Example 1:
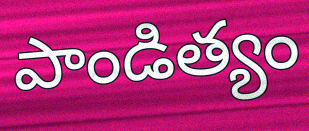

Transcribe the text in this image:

పాండిత్యం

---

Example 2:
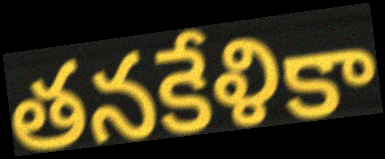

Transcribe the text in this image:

తనకేళికా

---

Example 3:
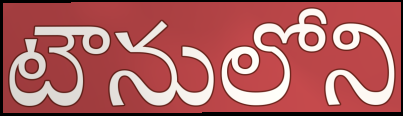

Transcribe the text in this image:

టౌనులోని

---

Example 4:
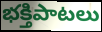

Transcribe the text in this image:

భక్తిపాటలు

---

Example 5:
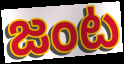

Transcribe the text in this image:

జంట